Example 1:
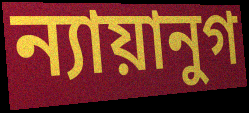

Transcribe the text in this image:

ন্যায়ানুগ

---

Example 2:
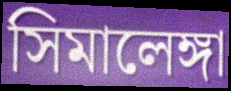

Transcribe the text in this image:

সিমালেঙ্গা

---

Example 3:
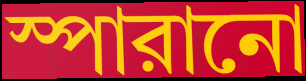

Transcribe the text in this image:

স্পারানো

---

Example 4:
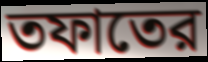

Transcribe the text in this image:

তফাতের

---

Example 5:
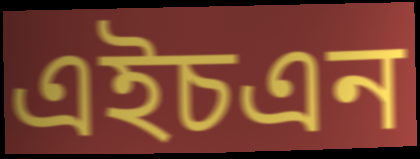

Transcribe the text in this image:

এইচএন